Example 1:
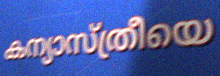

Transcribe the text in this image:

കന്യാസ്ത്രീയെ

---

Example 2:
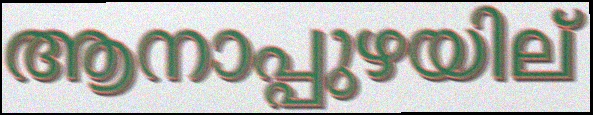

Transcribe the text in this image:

ആനാപ്പുഴയില്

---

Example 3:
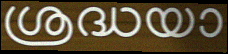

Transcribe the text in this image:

ശ്രദ്ധയാ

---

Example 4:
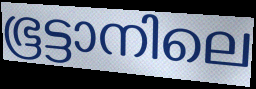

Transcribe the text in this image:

ഭൂട്ടാനിലെ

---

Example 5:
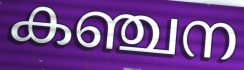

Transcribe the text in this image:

കഞ്ചന